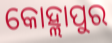
କୋହ୍ଲାପୁର